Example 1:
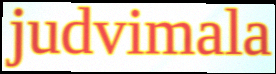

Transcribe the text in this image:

judvimala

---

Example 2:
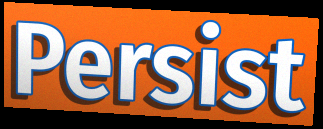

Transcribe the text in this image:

Persist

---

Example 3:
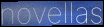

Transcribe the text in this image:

novellas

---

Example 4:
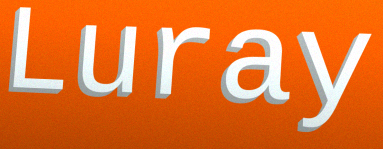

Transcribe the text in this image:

Luray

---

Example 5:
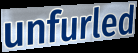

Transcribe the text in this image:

unfurled